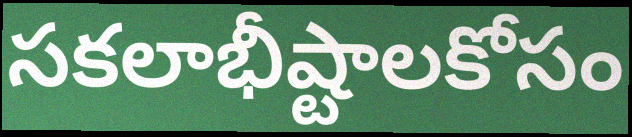
సకలాభీష్టాలకోసం